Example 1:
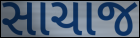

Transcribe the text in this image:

સાચાજ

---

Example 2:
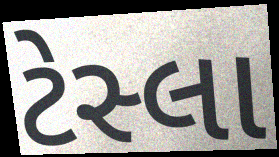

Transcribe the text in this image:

ટેસ્લા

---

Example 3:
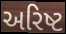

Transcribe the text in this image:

અરિષ્ટ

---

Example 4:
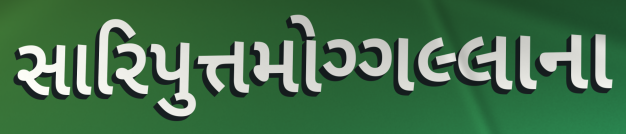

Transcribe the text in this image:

સારિપુત્તમોગ્ગલ્લાના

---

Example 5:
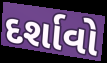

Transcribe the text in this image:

દર્શાવો